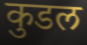
कुडल